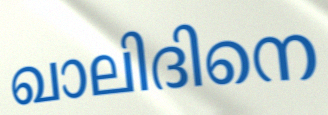
ഖാലിദിനെ